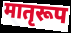
मातृरूप